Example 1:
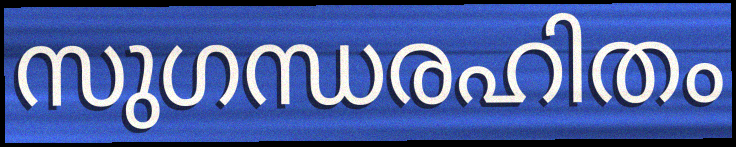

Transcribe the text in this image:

സുഗന്ധരഹിതം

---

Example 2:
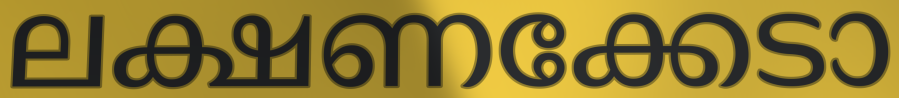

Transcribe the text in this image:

ലക്ഷണക്കേടാ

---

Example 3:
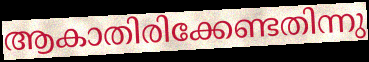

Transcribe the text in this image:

ആകാതിരിക്കേണ്ടതിന്നു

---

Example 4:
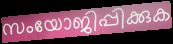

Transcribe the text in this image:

സംയോജിപ്പിക്കുക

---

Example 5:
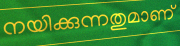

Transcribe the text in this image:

നയിക്കുന്നതുമാണ്